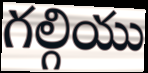
గల్గియు